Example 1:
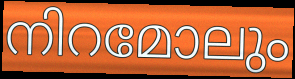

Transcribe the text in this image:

നിറമോലും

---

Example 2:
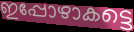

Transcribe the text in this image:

ഇപ്പോഴാകട്ടെ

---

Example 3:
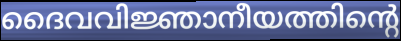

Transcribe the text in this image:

ദൈവവിജ്ഞാനീയത്തിന്റെ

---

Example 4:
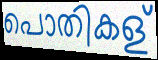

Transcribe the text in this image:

പൊതികള്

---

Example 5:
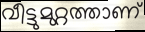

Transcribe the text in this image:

വീട്ടുമുറ്റത്താണ്